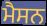
ਮੈਸਨ